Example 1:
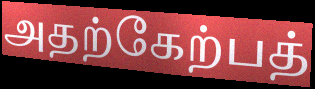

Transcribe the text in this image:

அதற்கேற்பத்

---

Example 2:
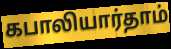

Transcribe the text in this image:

கபாலியார்தாம்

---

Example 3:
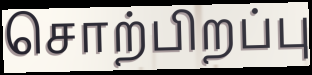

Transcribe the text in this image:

சொற்பிறப்பு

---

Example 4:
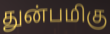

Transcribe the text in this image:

துன்பமிகு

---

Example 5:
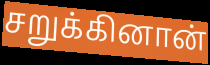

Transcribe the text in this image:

சறுக்கினான்